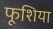
फूशिया